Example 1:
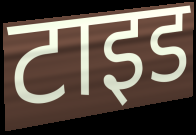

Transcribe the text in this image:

टाइड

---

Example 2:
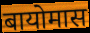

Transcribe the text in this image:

बायोमास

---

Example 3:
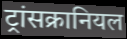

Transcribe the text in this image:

ट्रांसक्रानियल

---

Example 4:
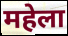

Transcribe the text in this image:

महेला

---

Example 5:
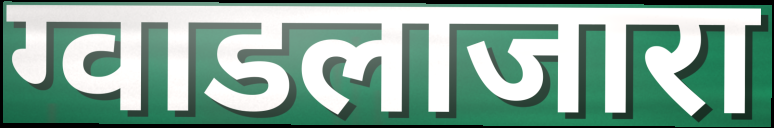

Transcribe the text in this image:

ग्वाडलाजारा